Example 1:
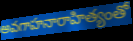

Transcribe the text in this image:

అవగాహనారాహిత్యంతో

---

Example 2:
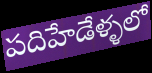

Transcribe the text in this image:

పదిహేడేళ్ళలో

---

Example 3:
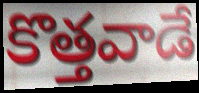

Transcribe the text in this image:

కొత్తవాడే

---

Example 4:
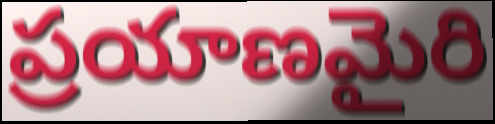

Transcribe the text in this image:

ప్రయాణమైరి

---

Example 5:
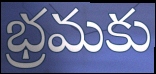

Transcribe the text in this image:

భ్రమకు